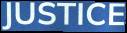
JUSTICE